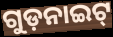
ଗୁଡ଼ନାଇଟ୍